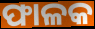
ଫାଳକ